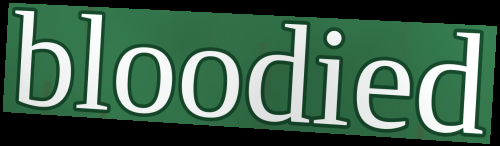
bloodied